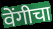
वेंगीचा